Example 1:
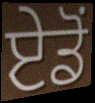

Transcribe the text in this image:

ਏਡੋਂ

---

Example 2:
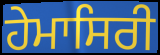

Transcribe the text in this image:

ਹੇਮਾਸਿਰੀ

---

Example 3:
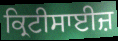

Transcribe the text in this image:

ਕ੍ਰਿਟੀਸਾਈਜ਼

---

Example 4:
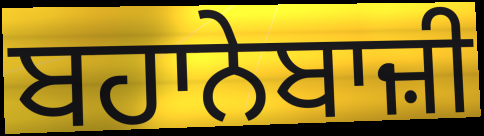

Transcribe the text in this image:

ਬਹਾਨੇਬਾਜ਼ੀ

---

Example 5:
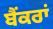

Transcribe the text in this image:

ਬੈਂਕਰਾਂ